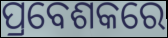
ପ୍ରବେଶକରେ